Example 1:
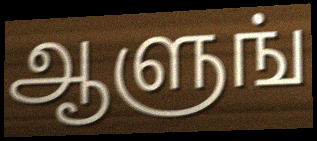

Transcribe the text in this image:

ஆளுங்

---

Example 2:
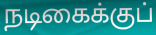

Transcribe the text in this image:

நடிகைக்குப்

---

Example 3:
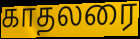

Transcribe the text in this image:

காதலரை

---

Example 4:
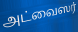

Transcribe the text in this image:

அட்வைஸர்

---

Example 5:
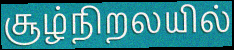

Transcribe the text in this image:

சூழ்நிறலயில்